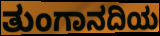
ತುಂಗಾನದಿಯ